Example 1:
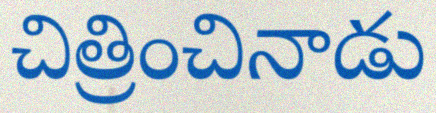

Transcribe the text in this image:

చిత్రించినాడు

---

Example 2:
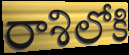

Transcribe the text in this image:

రాశిలోకి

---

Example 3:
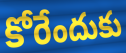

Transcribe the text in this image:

కోరేందుకు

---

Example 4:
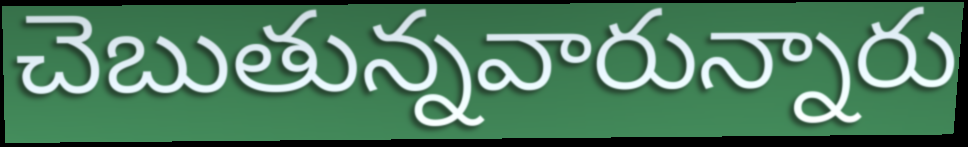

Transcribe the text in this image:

చెబుతున్నవారున్నారు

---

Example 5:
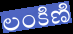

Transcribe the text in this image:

లంకిణి